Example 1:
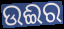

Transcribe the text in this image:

ଉଈର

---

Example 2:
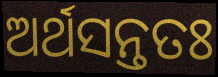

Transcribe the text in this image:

ଅର୍ଥସନ୍ତତଃ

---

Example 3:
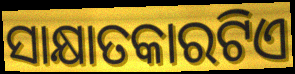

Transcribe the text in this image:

ସାକ୍ଷାତକାରଟିଏ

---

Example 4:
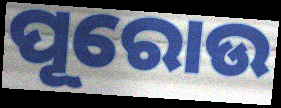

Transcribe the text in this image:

ପୂରୋଉ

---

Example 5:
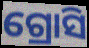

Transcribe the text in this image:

ଗ୍ରୋସି